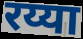
रय्या